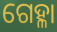
ଗେହ୍ଳା